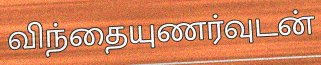
விந்தையுணர்வுடன்